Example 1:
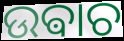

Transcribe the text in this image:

ଉଵାଚ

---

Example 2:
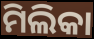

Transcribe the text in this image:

ମିଲିକା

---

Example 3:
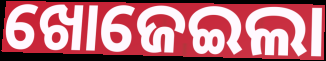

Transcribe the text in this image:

ଖୋଜେଇଲା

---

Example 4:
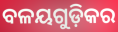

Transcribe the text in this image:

ବଳୟଗୁଡ଼ିକର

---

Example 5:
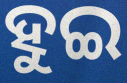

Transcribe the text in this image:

ହୁଇ